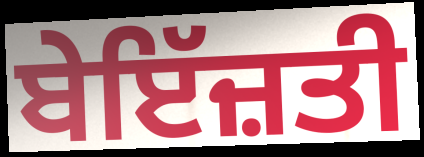
ਬੇਇੱਜ਼ਤੀ